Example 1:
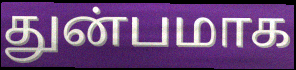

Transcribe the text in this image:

துன்பமாக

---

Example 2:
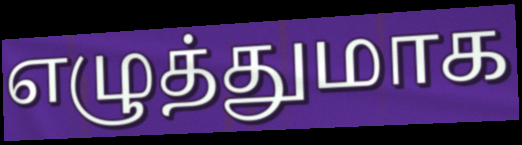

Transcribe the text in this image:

எழுத்துமாக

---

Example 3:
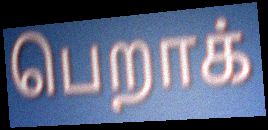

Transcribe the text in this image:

பெறாக்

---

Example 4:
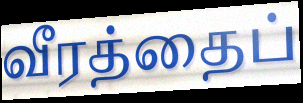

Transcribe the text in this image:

வீரத்தைப்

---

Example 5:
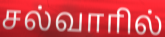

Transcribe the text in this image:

சல்வாரில்